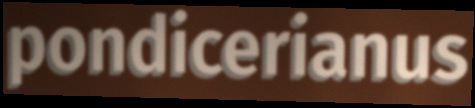
pondicerianus